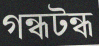
গন্ধটন্ধ